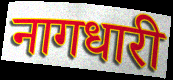
नागधारी